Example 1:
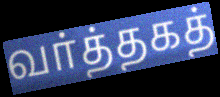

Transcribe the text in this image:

வர்த்தகத்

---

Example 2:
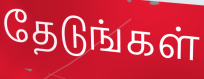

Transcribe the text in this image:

தேடுங்கள்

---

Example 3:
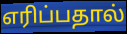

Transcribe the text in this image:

எரிப்பதால்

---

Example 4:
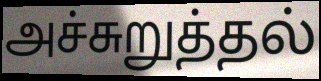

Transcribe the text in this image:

அச்சுறுத்தல்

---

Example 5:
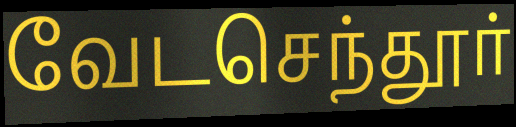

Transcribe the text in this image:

வேடசெந்தூர்